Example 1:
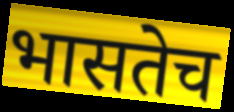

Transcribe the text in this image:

भासतेच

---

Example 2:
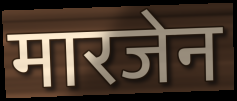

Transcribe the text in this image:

मारजेन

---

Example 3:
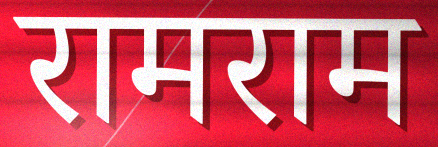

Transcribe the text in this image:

रामराम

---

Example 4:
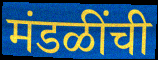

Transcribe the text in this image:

मंडळींची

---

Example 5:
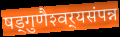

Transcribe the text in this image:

षड्‌गुणैश्वर्यसंपन्न